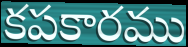
కపకారము